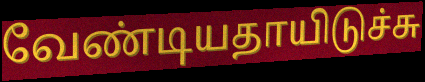
வேண்டியதாயிடுச்சு